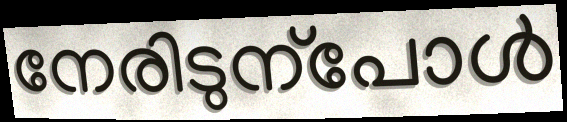
നേരിടുന്പോൾ